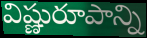
విష్ణురూపాన్ని